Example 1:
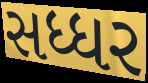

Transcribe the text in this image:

સધ્ધર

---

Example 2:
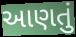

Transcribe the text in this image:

આણતું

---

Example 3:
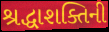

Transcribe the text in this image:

શ્રદ્ધાશક્તિની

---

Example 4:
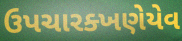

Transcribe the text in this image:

ઉપચારક્ખણેયેવ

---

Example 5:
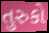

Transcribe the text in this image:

તુરુકો